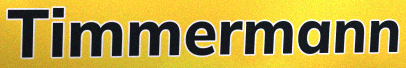
Timmermann